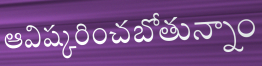
ఆవిష్కరించబోతున్నాం